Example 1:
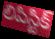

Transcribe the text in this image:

లిపిస్టిక్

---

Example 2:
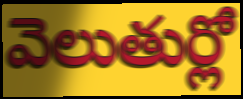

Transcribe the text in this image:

వెలుతుర్లో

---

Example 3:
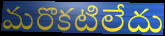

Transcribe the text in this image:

మరొకటిలేదు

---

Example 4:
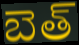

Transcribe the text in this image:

బెత్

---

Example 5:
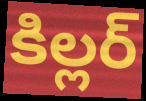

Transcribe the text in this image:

కిల్లర్